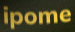
ipome